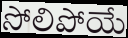
సోలిపోయే